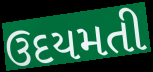
ઉદયમતી